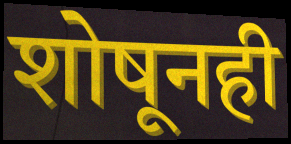
शोषूनही